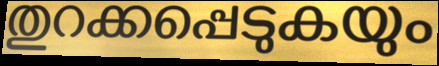
തുറക്കപ്പെടുകയും